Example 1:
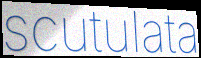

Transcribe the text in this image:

scutulata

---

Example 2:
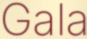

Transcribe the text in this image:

Gala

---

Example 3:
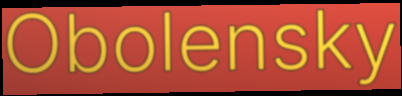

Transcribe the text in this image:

Obolensky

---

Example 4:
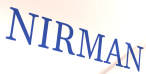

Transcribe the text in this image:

NIRMAN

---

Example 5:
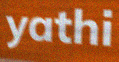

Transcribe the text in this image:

yathi